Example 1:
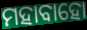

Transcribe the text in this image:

ମହାବାହୋ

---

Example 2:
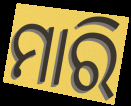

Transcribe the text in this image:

ମାରି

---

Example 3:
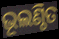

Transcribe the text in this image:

ଭୂଲଣ୍ଠିତ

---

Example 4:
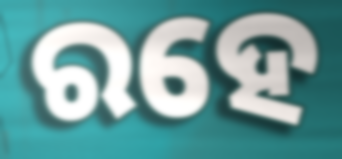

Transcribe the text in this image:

ରହେ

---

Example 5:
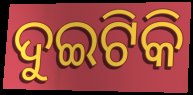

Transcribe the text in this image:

ଦୁଇଟିକି